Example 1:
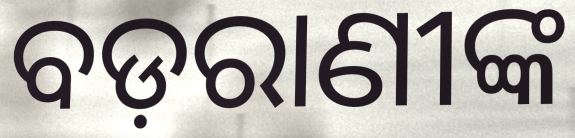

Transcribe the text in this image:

ବଡ଼ରାଣୀଙ୍କ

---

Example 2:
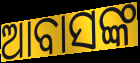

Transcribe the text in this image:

ଆବାସଙ୍କ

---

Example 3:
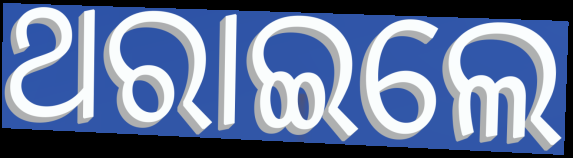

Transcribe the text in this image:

ଥରାଇଲେ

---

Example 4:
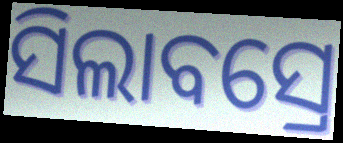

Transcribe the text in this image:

ସିଲାବସ୍ରେ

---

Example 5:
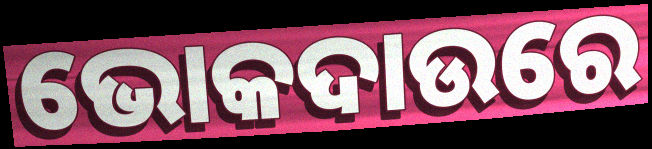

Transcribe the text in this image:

ଭୋକଦାଉରେ